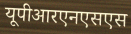
यूपीआरएनएसएस